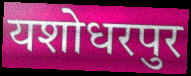
यशोधरपुर